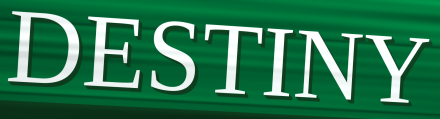
DESTINY